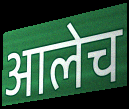
आलेच